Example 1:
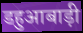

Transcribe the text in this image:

डहुआबाड़ी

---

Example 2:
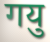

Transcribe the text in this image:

गयु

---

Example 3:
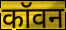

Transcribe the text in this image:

कॉवन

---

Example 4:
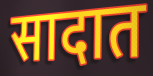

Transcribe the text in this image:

सादात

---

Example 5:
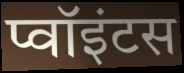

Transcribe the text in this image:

प्वॉइंटस